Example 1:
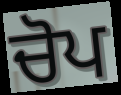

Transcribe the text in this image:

ਚੋਪ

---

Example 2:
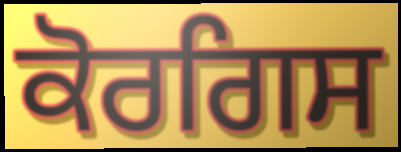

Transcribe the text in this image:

ਕੋਰਗਿਸ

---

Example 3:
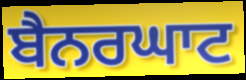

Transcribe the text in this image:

ਬੈਨਰਘਾਟ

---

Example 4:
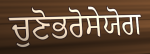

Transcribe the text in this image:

ਚੁਣੋਭਰੋਸੇਯੋਗ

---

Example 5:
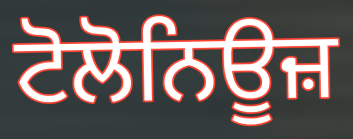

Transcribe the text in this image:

ਟੋਲੋਨਿਊਜ਼